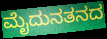
ಮೈದುನತನದ